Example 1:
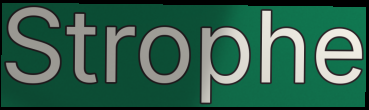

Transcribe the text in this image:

Strophe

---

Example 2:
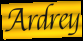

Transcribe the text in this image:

Ardrey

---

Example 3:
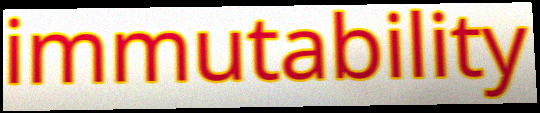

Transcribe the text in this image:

immutability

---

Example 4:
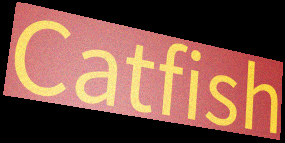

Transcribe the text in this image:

Catfish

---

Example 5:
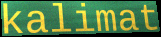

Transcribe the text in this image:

kalimat